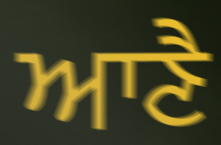
ਆਣੈ